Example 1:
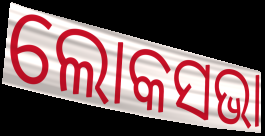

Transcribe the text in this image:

ଲୋକସଭା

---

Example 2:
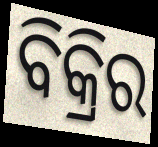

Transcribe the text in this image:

ବିକ୍ରିର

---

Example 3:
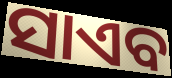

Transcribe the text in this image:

ସାଏବ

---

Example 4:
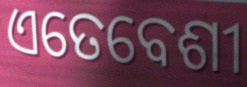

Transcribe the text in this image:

ଏତେବେଶୀ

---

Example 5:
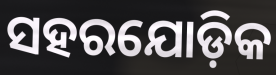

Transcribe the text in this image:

ସହରଯୋଡ଼ିକ